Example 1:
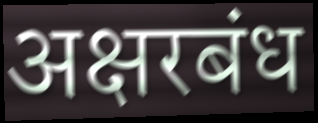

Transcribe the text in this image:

अक्षरबंध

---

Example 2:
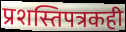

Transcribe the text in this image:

प्रशस्तिपत्रकही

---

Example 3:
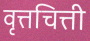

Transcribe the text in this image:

वृत्तचित्ती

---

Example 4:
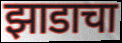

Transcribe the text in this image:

झाडाचा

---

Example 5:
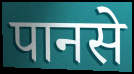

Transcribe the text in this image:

पानसे